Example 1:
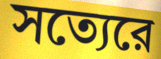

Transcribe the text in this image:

সত্যেরে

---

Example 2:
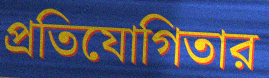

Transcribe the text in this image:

প্রতিযোগিতার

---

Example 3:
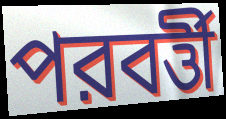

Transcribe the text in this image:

পরবর্ত্তী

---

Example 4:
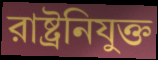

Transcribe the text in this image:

রাষ্ট্রনিযুক্ত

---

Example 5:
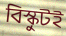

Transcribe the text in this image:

বিস্কুটই